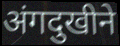
अंगदुखीने